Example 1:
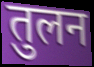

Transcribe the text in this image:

तुलन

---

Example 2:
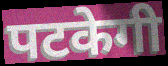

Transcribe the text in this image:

पटकेगी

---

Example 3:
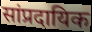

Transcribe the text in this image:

सांप्रदायिक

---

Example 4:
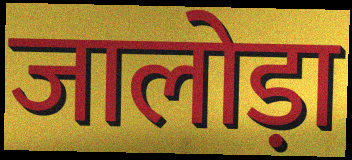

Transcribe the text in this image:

जालोड़ा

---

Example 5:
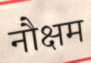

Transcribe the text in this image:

नौक्षम